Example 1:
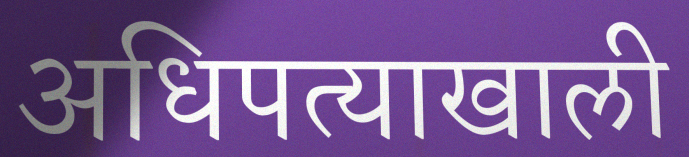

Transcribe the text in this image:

अधिपत्‍याखाली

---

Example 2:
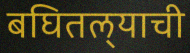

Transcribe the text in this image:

बघितल्याची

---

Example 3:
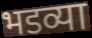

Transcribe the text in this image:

भडव्या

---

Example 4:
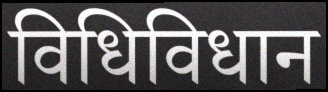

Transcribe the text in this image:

विधिविधान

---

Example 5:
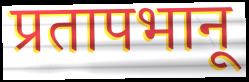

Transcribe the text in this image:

प्रतापभानू